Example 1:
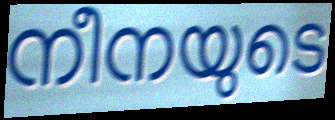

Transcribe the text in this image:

നീനയുടെ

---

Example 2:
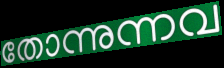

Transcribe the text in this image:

തോന്നുന്നവ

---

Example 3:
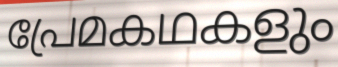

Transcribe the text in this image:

പ്രേമകഥകളും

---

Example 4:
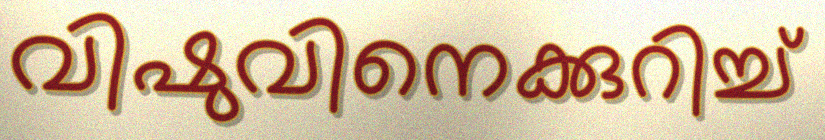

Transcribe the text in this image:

വിഷുവിനെക്കുറിച്ച്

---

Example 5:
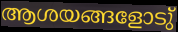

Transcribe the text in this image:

ആശയങ്ങളോടു്